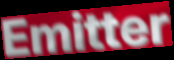
Emitter